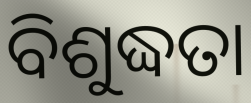
ବିଶୁଦ୍ଧତା